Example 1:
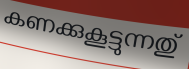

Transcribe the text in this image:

കണക്കുകൂട്ടുന്നതു്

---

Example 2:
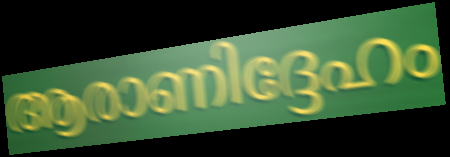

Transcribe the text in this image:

ആരാണിദ്ദേഹം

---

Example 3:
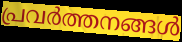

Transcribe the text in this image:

പ്രവർത്തനങ്ങൾ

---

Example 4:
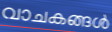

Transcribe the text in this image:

വാചകങ്ങൾ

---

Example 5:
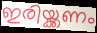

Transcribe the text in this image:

ഇരിയ്ക്കണം